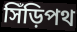
সিঁড়িপথ